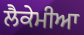
ਲੈਕੇਮੀਆ